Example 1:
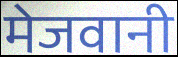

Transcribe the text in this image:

मेजवानी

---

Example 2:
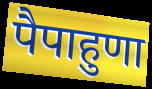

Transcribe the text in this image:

पैपाहुणा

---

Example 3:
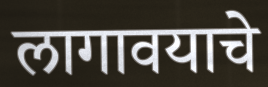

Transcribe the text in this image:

लागावयाचे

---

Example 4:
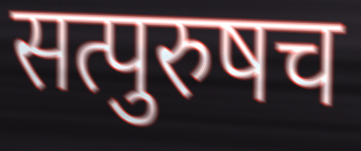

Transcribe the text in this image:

सत्पुरुषच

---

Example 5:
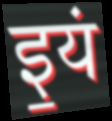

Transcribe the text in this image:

इ॒यं